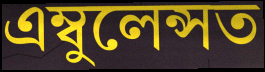
এম্বুলেন্সত